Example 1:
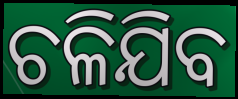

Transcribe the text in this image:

ଚଳିଯିବ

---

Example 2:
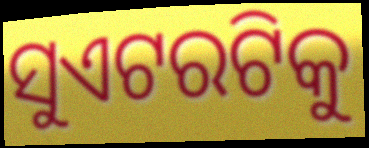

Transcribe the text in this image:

ସୁଏଟରଟିକୁ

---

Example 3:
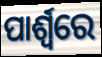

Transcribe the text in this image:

ପାର୍ଶ୍ଵରେ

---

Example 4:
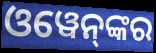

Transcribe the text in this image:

ଓୱେନ୍‌ଙ୍କର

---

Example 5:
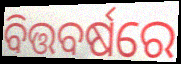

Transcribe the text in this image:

ବିତ୍ତବର୍ଷରେ